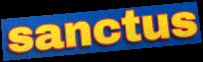
sanctus